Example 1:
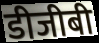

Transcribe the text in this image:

डीजीबी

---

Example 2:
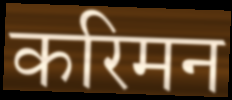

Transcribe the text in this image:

करिमन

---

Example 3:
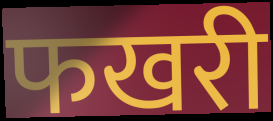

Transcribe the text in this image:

फखरी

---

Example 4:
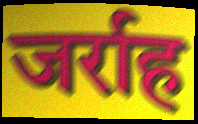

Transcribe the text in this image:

जर्राह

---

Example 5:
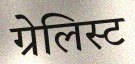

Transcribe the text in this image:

ग्रेलिस्ट